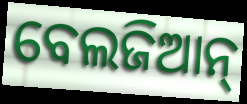
ବେଲଜିଆନ୍